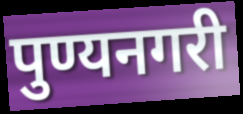
पुण्यनगरी